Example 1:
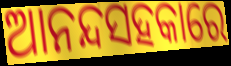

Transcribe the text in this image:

ଆନନ୍ଦସହକାରେ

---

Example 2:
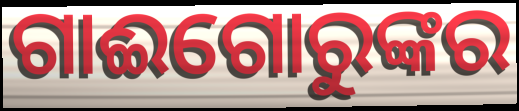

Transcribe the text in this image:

ଗାଈଗୋରୁଙ୍କର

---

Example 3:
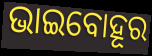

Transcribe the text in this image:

ଭାଇବୋହୂର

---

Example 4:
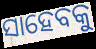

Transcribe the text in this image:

ସାହେବକୁ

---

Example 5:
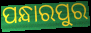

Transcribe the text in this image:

ପନ୍ଧାରପୁର